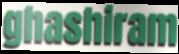
ghashiram